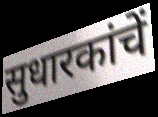
सुधारकांचें